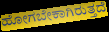
ಹೋಗಬೇಕಾಗಿರುತ್ತದೆ